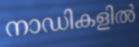
നാഡികളിൽ